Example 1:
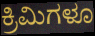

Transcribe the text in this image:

ಕ್ರಿಮಿಗಳೂ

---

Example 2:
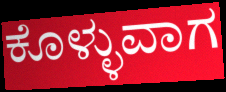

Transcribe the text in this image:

ಕೊಳ್ಳುವಾಗ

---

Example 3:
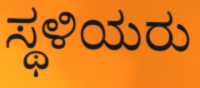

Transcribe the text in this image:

ಸ್ಥಳಿಯರು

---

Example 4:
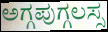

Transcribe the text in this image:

ಅಗ್ಗಪುಗ್ಗಲಸ್ಸ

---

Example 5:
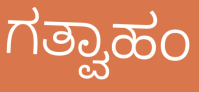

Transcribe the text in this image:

ಗತ್ವಾಹಂ